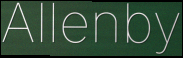
Allenby